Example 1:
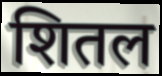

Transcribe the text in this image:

शितल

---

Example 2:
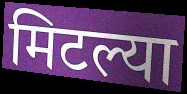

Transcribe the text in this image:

मिटल्या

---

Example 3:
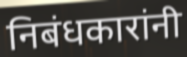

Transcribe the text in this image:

निबंधकारांनी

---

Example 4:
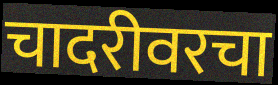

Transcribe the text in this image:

चादरीवरचा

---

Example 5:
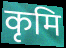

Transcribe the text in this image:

कृमि